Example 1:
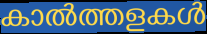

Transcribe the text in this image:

കാൽത്തളകൾ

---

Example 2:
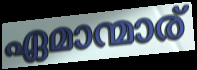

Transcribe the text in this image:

ഏമാന്മാര്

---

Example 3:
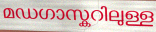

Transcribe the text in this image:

മഡഗാസ്കറിലുള്ള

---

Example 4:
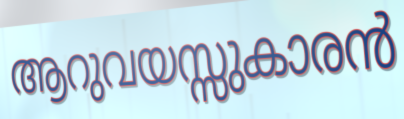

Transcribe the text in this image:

ആറുവയസ്സുകാരൻ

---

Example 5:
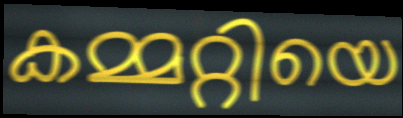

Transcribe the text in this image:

കമ്മറ്റിയെ